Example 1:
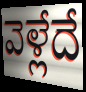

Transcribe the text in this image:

వెళ్లేదే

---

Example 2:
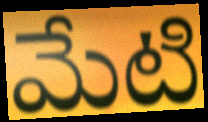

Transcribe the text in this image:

మేటి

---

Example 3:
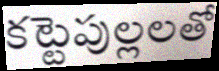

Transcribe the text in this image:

కట్టెపుల్లలతో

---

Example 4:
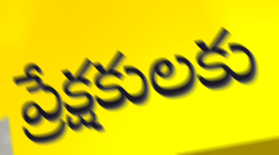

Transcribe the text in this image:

ప్రేక్షకులకు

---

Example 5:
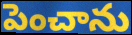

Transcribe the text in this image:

పెంచాను